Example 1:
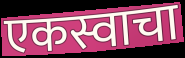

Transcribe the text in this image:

एकस्वाचा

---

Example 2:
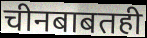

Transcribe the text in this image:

चीनबाबतही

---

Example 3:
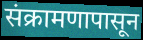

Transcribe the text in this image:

संक्रामणापासून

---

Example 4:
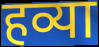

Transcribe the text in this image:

हव्या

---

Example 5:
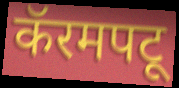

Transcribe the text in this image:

कॅरमपटू